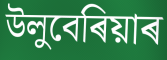
উলুবেৰিয়াৰ